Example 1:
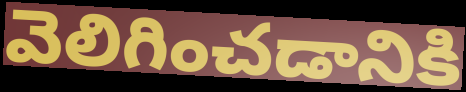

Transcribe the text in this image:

వెలిగించడానికి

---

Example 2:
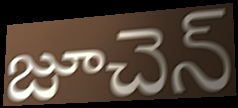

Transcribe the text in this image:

జూచెన్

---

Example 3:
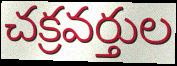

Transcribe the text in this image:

చక్రవర్తుల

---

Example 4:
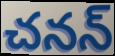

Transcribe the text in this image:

చనన్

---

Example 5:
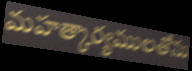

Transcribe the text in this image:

మహత్కార్యములతోను